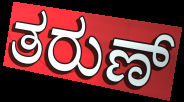
ತರುಣ್